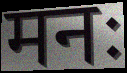
मनः